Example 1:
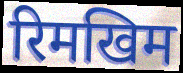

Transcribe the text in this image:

रिमखिम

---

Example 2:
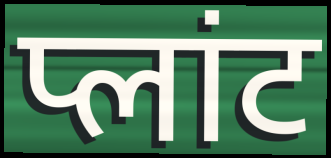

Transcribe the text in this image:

प्लांट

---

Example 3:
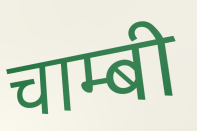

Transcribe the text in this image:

चाम्बी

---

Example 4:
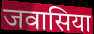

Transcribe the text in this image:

जवासिया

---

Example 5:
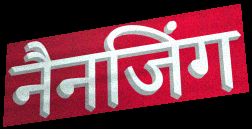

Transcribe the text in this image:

नैनजिंग